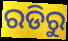
ରଡିରୁ